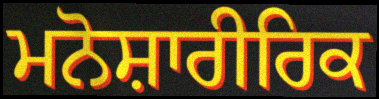
ਮਨੋਸ਼ਾਰੀਰਿਕ